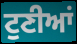
ਟੁਣੀਆਂ